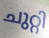
ചുറ്റി